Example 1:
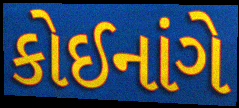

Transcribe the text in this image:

કોઈનાંગે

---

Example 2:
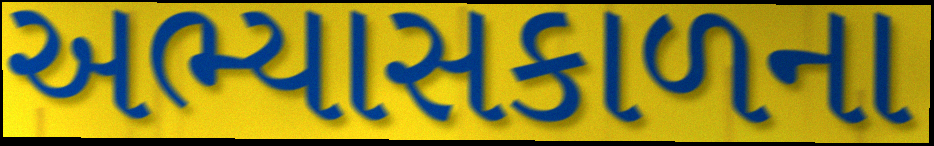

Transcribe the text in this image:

અભ્યાસકાળના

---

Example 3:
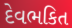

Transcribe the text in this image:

દેવભકિત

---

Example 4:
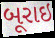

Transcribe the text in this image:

બૂરાઇ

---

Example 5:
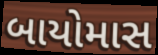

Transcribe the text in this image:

બાયોમાસ